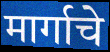
मार्गाचे